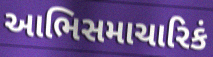
આભિસમાચારિકં